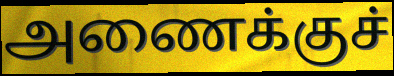
அணைக்குச்